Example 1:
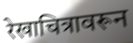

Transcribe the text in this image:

रेखाचित्रावरून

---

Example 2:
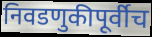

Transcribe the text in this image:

निवडणुकीपूर्वीच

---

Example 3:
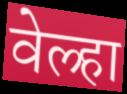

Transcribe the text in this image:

वेल्हा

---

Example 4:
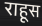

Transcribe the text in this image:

राहूस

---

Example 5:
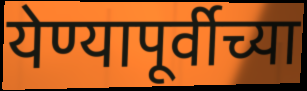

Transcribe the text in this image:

येण्यापूर्वीच्या